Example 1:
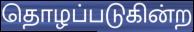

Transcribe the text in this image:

தொழப்படுகின்ற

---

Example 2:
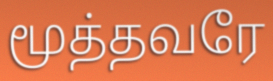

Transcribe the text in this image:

மூத்தவரே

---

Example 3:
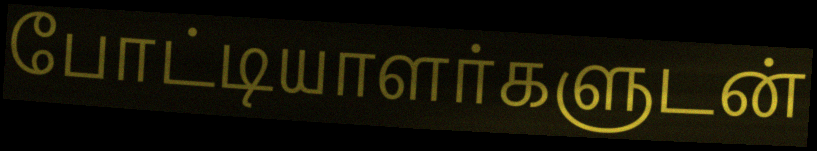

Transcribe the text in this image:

போட்டியாளர்களுடன்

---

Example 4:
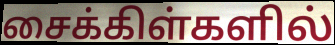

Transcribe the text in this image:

சைக்கிள்களில்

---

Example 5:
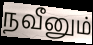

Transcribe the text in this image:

நவீனும்